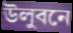
উলুবনে